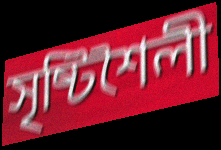
সৃষ্টিশৈলী